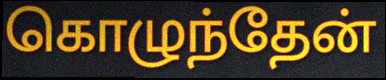
கொழுந்தேன்